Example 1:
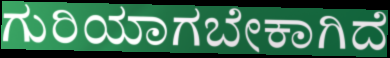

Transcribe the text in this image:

ಗುರಿಯಾಗಬೇಕಾಗಿದೆ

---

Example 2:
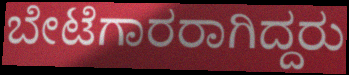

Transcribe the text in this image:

ಬೇಟೆಗಾರರಾಗಿದ್ದರು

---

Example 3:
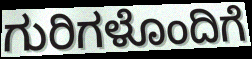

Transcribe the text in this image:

ಗುರಿಗಳೊಂದಿಗೆ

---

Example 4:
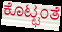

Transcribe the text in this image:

ಕೊಟ್ಟಂತೆ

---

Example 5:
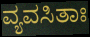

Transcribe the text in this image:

ವ್ಯವಸಿತಾಃ